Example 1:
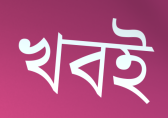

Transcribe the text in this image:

খবই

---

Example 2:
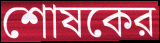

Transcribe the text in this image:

শোষকের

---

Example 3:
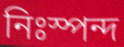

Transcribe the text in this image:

নিঃস্পন্দ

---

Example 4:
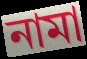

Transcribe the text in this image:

নামা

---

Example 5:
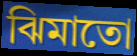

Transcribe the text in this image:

ঝিমাতো